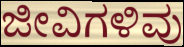
ಜೀವಿಗಳಿವು